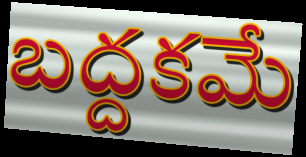
బద్దకమే